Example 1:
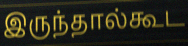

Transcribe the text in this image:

இருந்தால்கூட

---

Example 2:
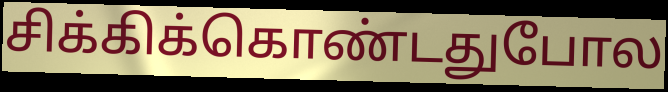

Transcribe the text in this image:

சிக்கிக்கொண்டதுபோல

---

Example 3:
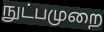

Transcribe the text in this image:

நுட்பமுறை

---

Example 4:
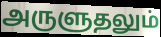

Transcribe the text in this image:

அருளுதலும்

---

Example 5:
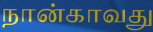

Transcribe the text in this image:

நான்காவது